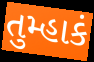
તુમ્હાકં